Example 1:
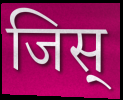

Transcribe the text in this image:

जिस्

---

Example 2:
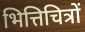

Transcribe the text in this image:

भित्तिचित्रों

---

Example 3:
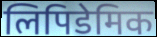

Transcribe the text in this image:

लिपिडेमिक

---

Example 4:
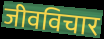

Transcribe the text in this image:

जीवविचार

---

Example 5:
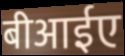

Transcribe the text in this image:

बीआईए